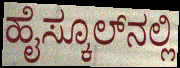
ಹೈಸ್ಕೂಲ್‍ನಲ್ಲಿ